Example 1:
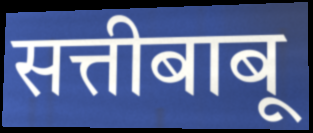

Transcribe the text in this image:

सत्तीबाबू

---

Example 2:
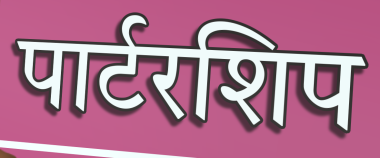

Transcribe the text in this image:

पार्टरशिप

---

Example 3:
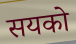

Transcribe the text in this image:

सयको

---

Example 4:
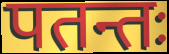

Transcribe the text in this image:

पतन्तः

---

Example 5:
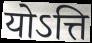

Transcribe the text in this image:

योऽत्ति